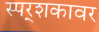
स्पर्शकावर